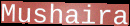
Mushaira